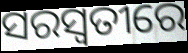
ସରସ୍ୱତୀରେ